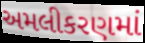
અમલીકરણમાં